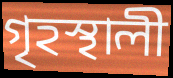
গৃহস্থালী